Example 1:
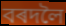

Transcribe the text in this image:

বৰদলৈ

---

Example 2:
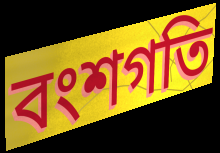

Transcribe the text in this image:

বংশগতি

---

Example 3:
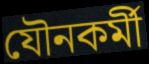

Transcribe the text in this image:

যৌনকৰ্মী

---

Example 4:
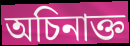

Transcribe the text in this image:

অচিনাক্ত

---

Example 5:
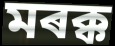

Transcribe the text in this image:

মৰক্ক